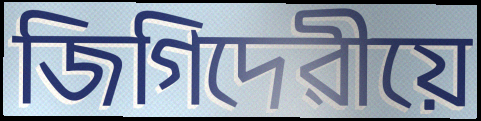
জিগিদেৱীয়ে